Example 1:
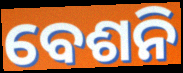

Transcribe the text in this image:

ବେଶନି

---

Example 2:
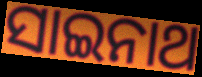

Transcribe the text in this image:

ସାଇନାଥ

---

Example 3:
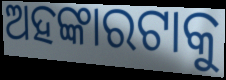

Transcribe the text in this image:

ଅହଙ୍କାରଟାକୁ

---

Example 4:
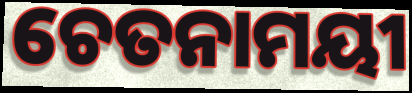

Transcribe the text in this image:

ଚେତନାମୟୀ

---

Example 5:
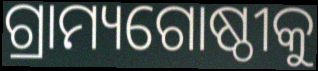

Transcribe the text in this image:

ଗ୍ରାମ୍ୟଗୋଷ୍ଠୀକୁ